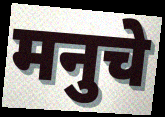
मनुचे